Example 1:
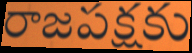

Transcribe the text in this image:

రాజపక్షకు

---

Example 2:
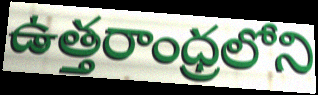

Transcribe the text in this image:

ఉత్తరాంధ్రలోని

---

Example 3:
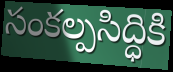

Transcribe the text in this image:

సంకల్పసిద్ధికి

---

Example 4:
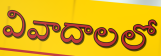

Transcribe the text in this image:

వివాదాలలో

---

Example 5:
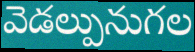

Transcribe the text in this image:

వెడల్పునుగల